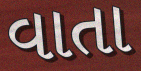
વાતા